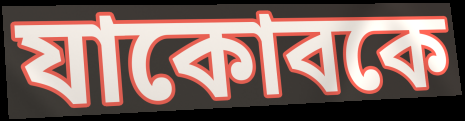
যাকোবকে